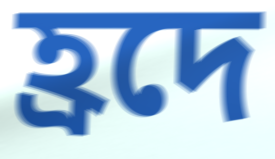
হ্রদে